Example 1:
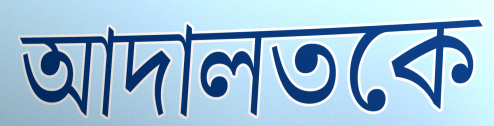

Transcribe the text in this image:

আদালতকে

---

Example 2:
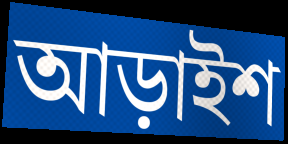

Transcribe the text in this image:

আড়াইশ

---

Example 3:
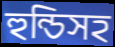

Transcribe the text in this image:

হুন্ডিসহ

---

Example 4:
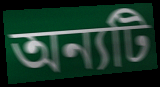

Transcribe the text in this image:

অন্যটি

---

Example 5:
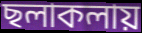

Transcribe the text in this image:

ছলাকলায়